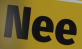
Nee